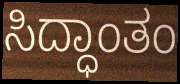
ಸಿದ್ಧಾಂತಂ